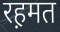
रह़मत